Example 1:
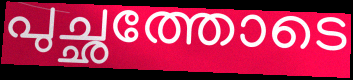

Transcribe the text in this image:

പുച്ഛത്തോടെ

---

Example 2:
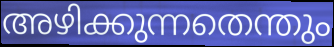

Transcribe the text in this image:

അഴിക്കുന്നതെന്തും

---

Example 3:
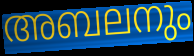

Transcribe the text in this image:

അബലനും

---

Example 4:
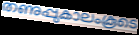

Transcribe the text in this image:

തണുപ്പുകാലംകൂടെ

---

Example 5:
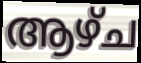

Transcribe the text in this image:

ആഴ്ച